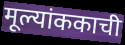
मूल्यांककाची